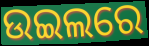
ଉଇଲରେ